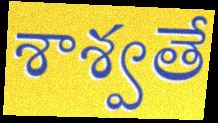
శాశ్వతే